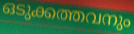
ഒടുക്കത്തവനും